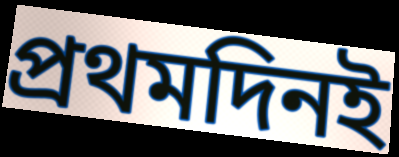
প্রথমদিনই